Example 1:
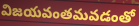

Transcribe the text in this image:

విజయవంతమవడంతో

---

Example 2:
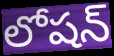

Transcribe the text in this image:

లోషన్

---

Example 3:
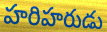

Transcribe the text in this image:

హరిహరుడు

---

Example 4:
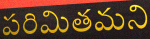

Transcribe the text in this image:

పరిమితమని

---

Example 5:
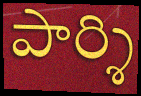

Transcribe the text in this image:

పార్శి